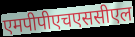
एमपीपीएचएससीएल